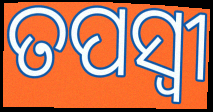
ତପସ୍ବୀ